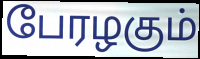
பேரழகும்